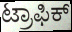
ಟ್ರಾಫಿಕ್